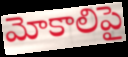
మోకాలిపై